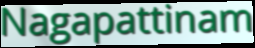
Nagapattinam